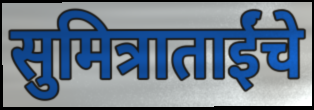
सुमित्राताईंचे